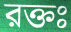
রক্তঃ